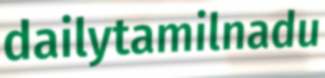
dailytamilnadu